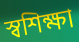
স্বশিক্ষা